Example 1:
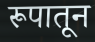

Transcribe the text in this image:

रूपातून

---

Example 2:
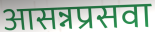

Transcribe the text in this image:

आसन्नप्रसवा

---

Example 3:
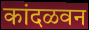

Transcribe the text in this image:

कांदळवन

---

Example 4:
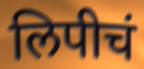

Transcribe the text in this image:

लिपीचं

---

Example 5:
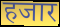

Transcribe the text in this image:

हजार